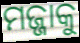
ମଜ୍ଜାକୁ